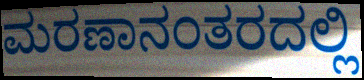
ಮರಣಾನಂತರದಲ್ಲಿ